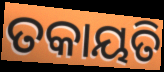
ତକାୟତି